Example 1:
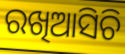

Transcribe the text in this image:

ରଖିଆସିଚି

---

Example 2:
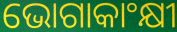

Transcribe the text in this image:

ଭୋଗାକାଂକ୍ଷୀ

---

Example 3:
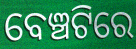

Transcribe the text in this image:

ବେଞ୍ଚଟିରେ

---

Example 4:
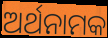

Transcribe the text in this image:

ଅର୍ଥନାମକ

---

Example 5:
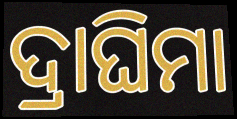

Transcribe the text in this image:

ଦ୍ରାଘିମା